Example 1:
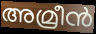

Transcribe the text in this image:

അമ്രീൻ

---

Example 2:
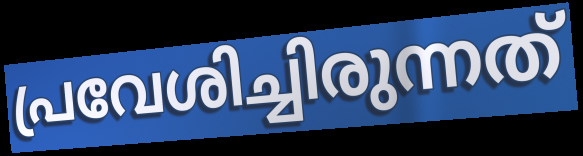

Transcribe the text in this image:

പ്രവേശിച്ചിരുന്നത്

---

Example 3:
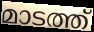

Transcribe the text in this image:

മാടത്ത്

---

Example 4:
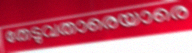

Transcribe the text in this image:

തേടുവതാരെയാരെ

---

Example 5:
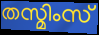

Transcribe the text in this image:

തസ്മിംസ്